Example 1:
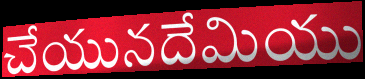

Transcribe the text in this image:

చేయునదేమియు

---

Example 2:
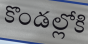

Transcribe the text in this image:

కొండల్లోకి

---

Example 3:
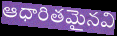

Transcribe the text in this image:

ఆధారితమైనవి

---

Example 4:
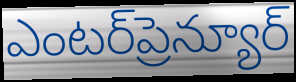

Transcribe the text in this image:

ఎంటర్‌ప్రెన్యూర్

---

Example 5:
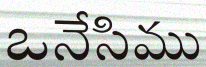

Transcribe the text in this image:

ఒనేసిము